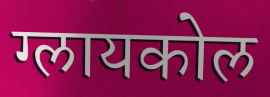
ग्लायकोल